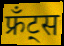
फ्रँट्स